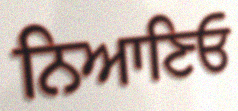
ਨਿਆਣਿਓ